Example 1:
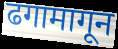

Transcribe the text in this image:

ढगामागून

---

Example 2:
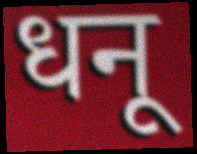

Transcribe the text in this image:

धनू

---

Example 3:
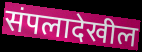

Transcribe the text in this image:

संपलादेखील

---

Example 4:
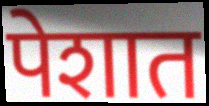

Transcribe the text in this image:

पेशात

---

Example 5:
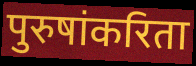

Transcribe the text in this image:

पुरुषांकरिता